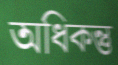
অধিকন্তু